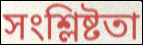
সংশ্লিষ্টতা